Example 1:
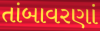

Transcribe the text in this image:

તાંબાવરણાં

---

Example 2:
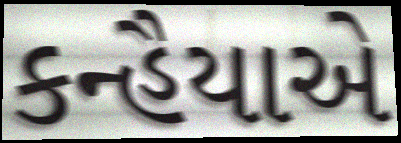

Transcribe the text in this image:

કન્હૈયાએ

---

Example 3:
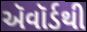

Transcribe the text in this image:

ઍવૉર્ડથી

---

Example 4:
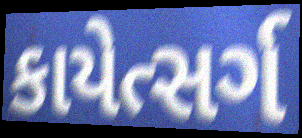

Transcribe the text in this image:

કાયેત્સર્ગ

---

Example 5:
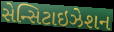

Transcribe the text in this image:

સેન્સિટાઇઝેશન